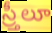
స్ర్తీలూ